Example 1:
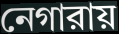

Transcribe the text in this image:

নেগারায়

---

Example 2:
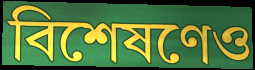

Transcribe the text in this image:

বিশেষণেও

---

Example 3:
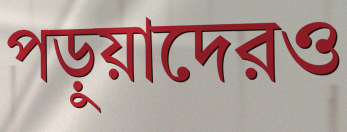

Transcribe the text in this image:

পড়ুয়াদেরও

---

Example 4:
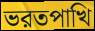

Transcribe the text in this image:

ভরতপাখি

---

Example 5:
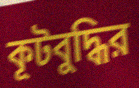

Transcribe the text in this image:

কূটবুদ্ধির